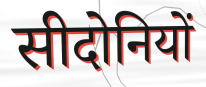
सीदोनियों